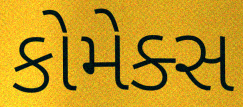
કોમેક્સ